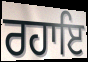
ਰਹਾਇ